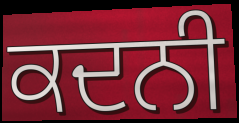
ਕਦਨੀ